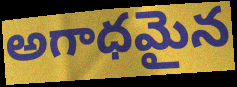
అగాధమైన